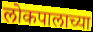
लोकपालाच्या